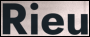
Rieu